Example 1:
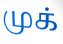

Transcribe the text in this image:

முக்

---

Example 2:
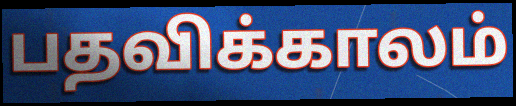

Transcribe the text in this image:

பதவிக்காலம்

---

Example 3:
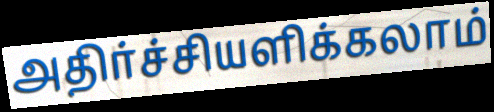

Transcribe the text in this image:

அதிர்ச்சியளிக்கலாம்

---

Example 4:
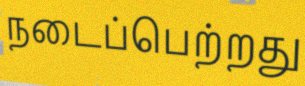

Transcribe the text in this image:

நடைப்பெற்றது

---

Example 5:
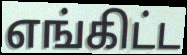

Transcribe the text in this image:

எங்கிட்ட